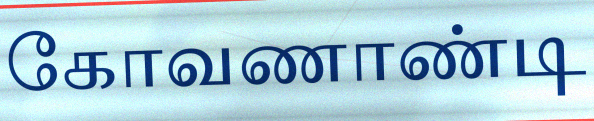
கோவணாண்டி